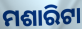
ମଶାରିଟା